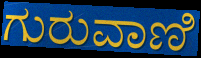
ಗುರುವಾಣಿ